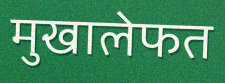
मुखालेफत